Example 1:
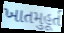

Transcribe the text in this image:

ખાતમુહૂર્ત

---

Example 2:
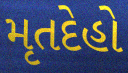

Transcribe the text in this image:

મૃતદેહો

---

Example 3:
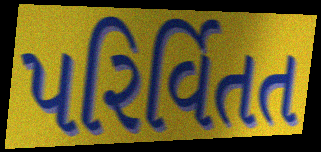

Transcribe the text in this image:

પરિર્વિતત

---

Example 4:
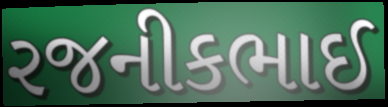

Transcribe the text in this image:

રજનીકભાઈ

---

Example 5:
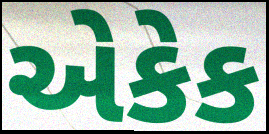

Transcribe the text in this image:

એકેક